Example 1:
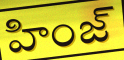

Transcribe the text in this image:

హింజ్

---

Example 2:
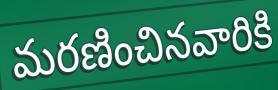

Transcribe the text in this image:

మరణించినవారికి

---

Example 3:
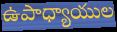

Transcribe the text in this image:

ఉపాధ్యాయుల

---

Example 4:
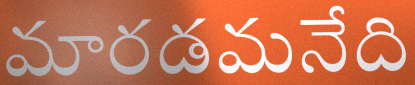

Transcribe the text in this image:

మారడమనేది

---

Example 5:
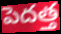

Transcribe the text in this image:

పెదత్త